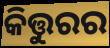
କିତ୍ତୁରର